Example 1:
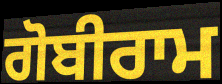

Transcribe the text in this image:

ਗੋਬੀਰਾਮ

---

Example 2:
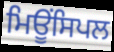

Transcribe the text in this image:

ਮਿਊਂਸਿਪਲ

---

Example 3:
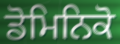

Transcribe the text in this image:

ਡੋਮਿਨਿਕੋ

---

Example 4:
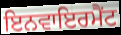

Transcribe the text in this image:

ਇਨਵਾਇਰਮੈਂਟ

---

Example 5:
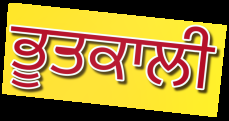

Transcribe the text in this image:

ਭੂਤਕਾਲੀ